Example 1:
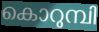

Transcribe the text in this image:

കൊറുമ്പി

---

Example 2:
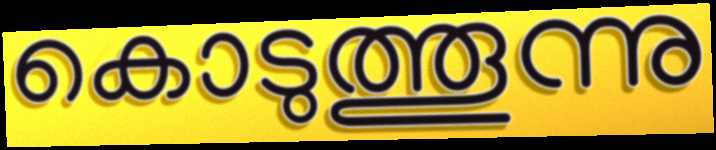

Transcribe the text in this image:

കൊടുത്തൂന്നു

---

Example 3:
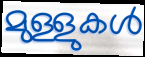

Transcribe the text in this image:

മുള്ളുകൾ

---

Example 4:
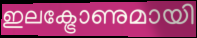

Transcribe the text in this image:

ഇലക്ട്രോണുമായി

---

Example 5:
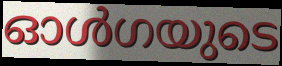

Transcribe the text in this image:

ഓൾഗയുടെ